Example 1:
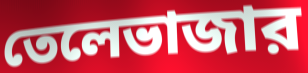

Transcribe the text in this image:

তেলেভাজার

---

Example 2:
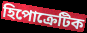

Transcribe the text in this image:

হিপোক্রেটিক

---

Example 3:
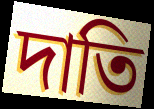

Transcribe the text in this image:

দাতি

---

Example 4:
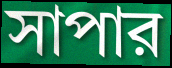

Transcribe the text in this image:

সাপার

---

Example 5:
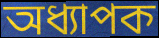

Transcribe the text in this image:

অধ্যাপক